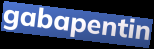
gabapentin